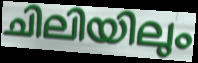
ചിലിയിലും